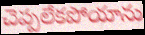
చెప్పలేకపోయాను